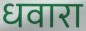
धवारा